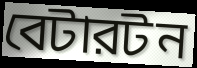
বেটারটন